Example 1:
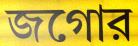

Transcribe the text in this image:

জগোর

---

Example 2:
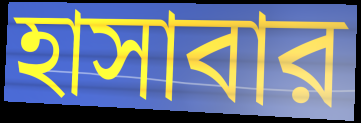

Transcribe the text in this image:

হাসাবার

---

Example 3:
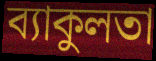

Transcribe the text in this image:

ব্যাকুলতা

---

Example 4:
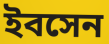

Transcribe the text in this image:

ইবসেন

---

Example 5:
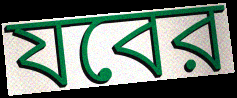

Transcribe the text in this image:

যবের